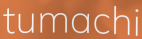
tumachi